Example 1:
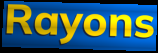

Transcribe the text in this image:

Rayons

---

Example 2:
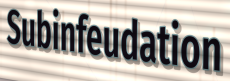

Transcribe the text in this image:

Subinfeudation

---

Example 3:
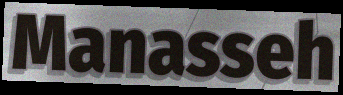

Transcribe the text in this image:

Manasseh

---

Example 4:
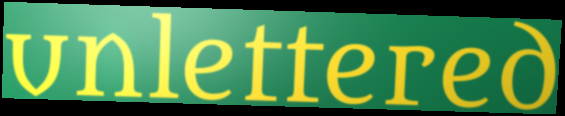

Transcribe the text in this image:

unlettered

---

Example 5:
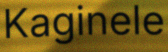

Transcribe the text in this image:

Kaginele